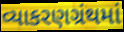
વ્યાકરણગ્રંથમાં